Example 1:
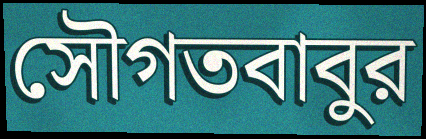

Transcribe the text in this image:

সৌগতবাবুর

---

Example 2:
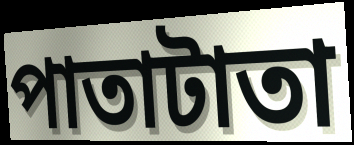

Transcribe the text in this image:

পাতাটাতা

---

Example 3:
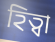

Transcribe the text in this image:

হিত্বা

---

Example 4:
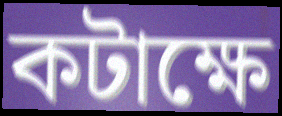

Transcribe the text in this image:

কটাক্ষে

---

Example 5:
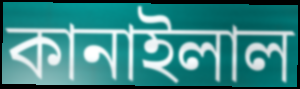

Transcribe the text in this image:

কানাইলাল